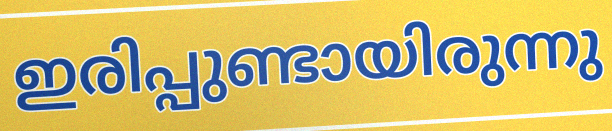
ഇരിപ്പുണ്ടായിരുന്നു